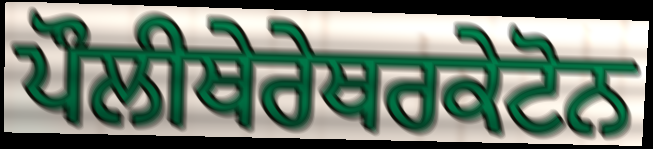
ਪੌਲੀਥੇਰੇਥਰਕੇਟੋਨ